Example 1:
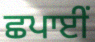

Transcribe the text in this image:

ਛਪਾਈਂ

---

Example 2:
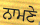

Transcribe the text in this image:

ਨਾਮਣੇ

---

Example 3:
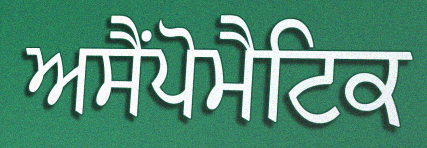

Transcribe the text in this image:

ਅਸੈਂਪੋਮੈਟਿਕ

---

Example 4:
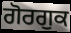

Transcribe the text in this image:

ਗੋਰਗੁਕ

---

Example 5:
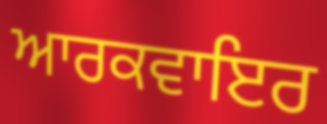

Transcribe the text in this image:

ਆਰਕਵਾਇਰ